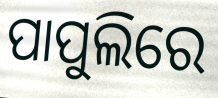
ପାପୁଲିରେ